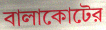
বালাকোটের